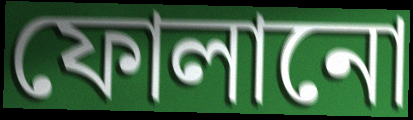
ফোলানো